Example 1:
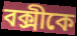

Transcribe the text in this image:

বক্সীকে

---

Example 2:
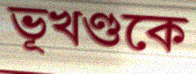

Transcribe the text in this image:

ভূখণ্ডকে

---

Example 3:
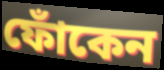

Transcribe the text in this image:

ফোঁকেন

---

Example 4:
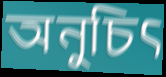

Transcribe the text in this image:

অনুচিৎ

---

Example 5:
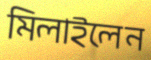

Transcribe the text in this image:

মিলাইলেন